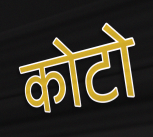
कोटो